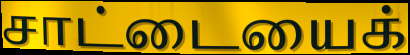
சாட்டையைக்